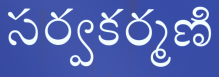
సర్వకర్మణి